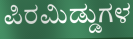
ಪಿರಮಿಡ್ಡುಗಳ